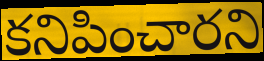
కనిపించారని